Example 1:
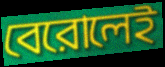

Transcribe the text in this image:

বেরোলেই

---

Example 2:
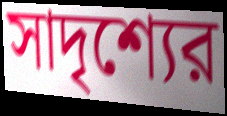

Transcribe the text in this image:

সাদৃশ্যের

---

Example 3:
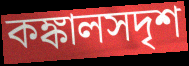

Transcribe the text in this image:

কঙ্কালসদৃশ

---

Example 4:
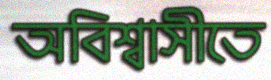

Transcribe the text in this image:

অবিশ্বাসীতে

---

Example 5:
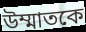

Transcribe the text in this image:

উম্মাতকে